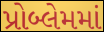
પ્રોબ્લેમમાં